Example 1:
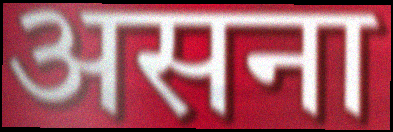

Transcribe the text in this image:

असना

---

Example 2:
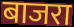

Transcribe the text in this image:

बाजरा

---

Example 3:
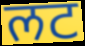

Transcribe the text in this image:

लट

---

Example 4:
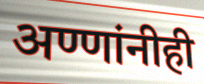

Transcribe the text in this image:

अण्णांनीही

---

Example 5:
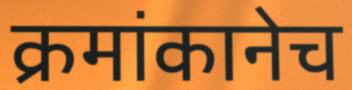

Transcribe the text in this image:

क्रमांकानेच